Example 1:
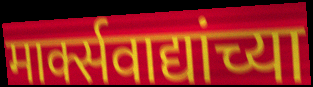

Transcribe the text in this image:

मार्क्सवाद्यांच्या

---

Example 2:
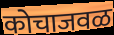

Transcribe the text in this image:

कोचाजवळ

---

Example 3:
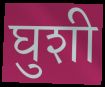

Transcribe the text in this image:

घुशी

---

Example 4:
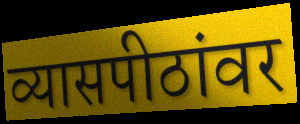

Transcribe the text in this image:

व्यासपीठांवर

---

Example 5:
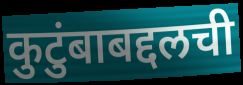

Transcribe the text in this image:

कुटुंबाबद्दलची